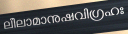
ലീലാമാനുഷവിഗ്രഹഃ